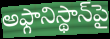
అఫ్గానిస్థాన్‌పై